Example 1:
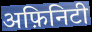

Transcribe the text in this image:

अफ़िनिटी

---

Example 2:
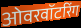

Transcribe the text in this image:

ओवरवॉटरिंग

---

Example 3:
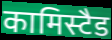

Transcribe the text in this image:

कामिस्टैड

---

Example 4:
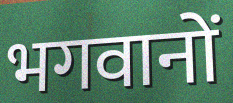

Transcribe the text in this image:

भगवानों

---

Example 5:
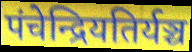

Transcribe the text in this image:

पंचेन्द्रियतिर्यञ्च